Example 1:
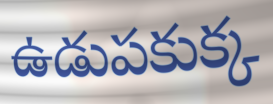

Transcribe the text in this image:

ఉడుపకుక్క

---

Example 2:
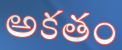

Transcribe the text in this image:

అకతం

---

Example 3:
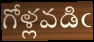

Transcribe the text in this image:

గోళ్లవడిఁ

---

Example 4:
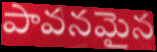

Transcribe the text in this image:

పావనమైన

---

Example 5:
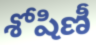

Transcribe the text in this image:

శోషిణీ